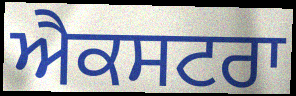
ਐਕਸਟਰਾ